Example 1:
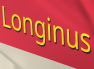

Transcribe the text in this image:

Longinus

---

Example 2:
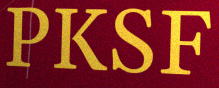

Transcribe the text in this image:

PKSF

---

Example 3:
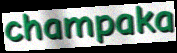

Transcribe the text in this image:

champaka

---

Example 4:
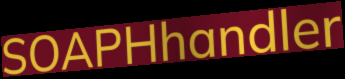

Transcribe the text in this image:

SOAPHhandler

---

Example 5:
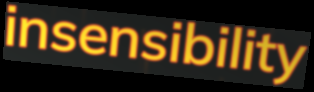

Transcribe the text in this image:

insensibility